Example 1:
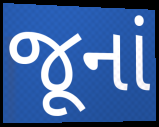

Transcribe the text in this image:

જૂનાં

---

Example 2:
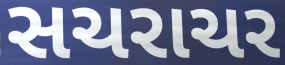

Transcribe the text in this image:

સચરાચર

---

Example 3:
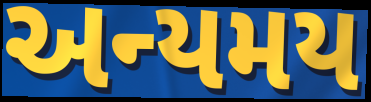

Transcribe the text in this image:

અન્યમય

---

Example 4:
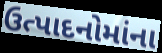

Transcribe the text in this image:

ઉત્પાદનોમાંના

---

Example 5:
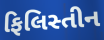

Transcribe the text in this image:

ફિલિસ્તીન